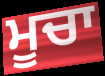
ਮੂਚਾ